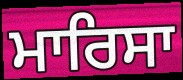
ਮਾਰਿਸਾ